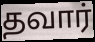
தவார்